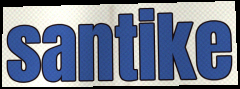
santike